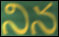
నిన